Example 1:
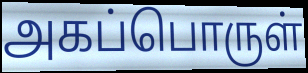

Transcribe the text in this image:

அகப்பொருள்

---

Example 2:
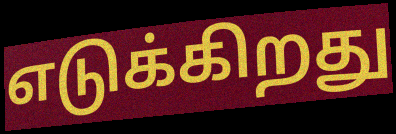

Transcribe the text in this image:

எடுக்கிறது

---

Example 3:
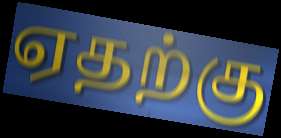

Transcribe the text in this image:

ஏதற்கு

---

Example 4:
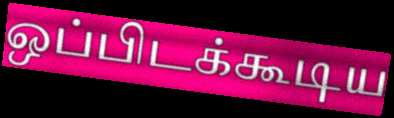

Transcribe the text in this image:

ஒப்பிடக்கூடிய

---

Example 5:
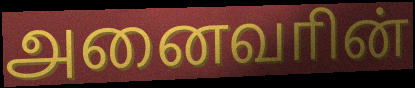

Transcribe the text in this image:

அனைவரின்